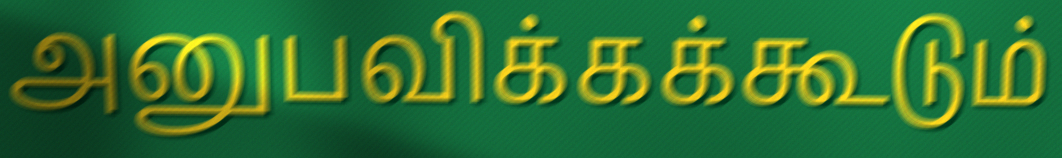
அனுபவிக்கக்கூடும்